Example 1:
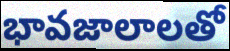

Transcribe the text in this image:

భావజాలాలతో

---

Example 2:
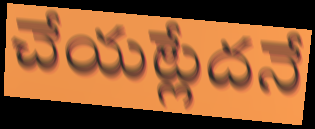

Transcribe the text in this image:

చేయట్లేదనే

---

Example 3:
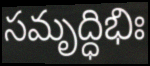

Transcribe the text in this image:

సమృద్ధిభిః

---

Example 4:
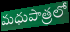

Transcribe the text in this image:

మధుపాత్రలో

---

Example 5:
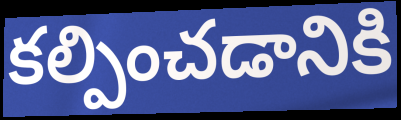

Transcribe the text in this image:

కల్పించడానికి